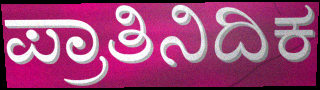
ಪ್ರಾತಿನಿದಿಕ